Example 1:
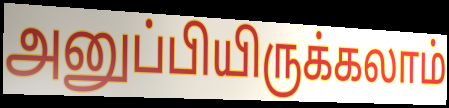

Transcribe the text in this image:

அனுப்பியிருக்கலாம்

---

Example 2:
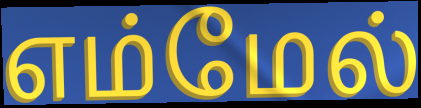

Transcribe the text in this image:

எம்மேல்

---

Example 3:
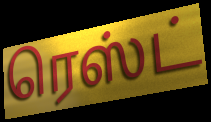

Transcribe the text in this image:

ரெஸ்ட்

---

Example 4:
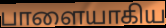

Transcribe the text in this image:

பாளையாகிய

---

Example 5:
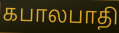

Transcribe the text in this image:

கபாலபாதி